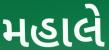
મહાલે